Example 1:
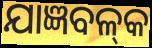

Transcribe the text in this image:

ଯାଜ୍ଞବଳ୍‍କ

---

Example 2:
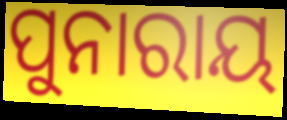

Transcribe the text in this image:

ପୁନାରାୟ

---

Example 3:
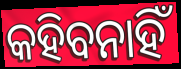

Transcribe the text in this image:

କହିବନାହିଁ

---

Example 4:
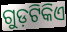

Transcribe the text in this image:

ଗୁଡ଼ଟିକିଏ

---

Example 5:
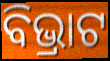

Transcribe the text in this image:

ବିଭ୍ରାଟ